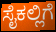
ಸೈಕಲ್ಲಿಗೆ